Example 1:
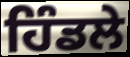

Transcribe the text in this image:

ਹਿੰਡਲੇ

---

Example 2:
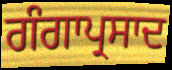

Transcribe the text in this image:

ਗੰਗਾਪ੍ਰਸਾਦ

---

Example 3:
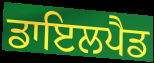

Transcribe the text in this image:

ਡਾਇਲਪੈਡ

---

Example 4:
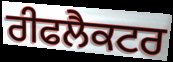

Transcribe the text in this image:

ਰੀਫਲੈਕਟਰ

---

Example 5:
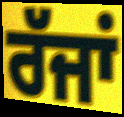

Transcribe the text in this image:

ਰੱਜਾਂ